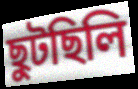
ছুটছিলি